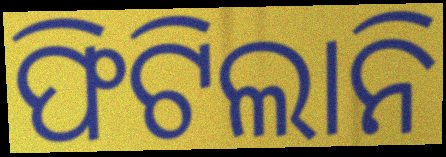
ଫିଟିଲାନି